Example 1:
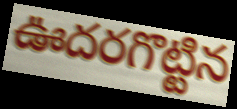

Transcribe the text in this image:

ఊదరగొట్టిన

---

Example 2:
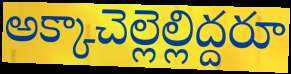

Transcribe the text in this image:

అక్కాచెల్లెల్లిద్దరూ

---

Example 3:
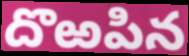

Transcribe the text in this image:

దొఱపిన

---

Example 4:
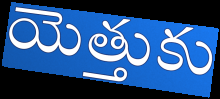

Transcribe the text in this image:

యెత్తుకు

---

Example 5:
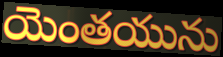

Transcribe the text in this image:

యెంతయును